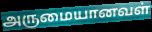
அருமையானவள்